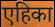
एहिका